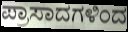
ಪ್ರಾಸಾದಗಳಿಂದ